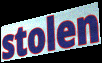
stolen